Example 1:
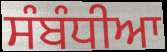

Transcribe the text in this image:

ਸੰਬੰਧੀਆ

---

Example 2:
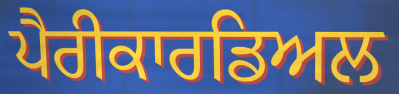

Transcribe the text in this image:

ਪੈਰੀਕਾਰਡਿਅਲ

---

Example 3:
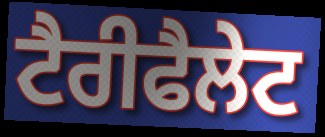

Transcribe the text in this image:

ਟੈਰੀਫੈਲੇਟ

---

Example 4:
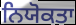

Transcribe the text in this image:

ਨਿਯੋਕਤਾ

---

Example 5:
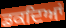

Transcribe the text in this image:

ਡਕਦਿਆਂ